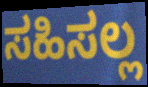
ಸಹಿಸಲ್ಲ